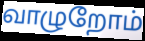
வாழுறோம்